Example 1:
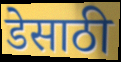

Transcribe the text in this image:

डेसाठी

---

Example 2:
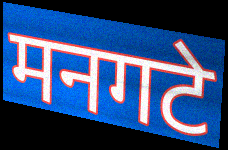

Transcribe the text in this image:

मनगटे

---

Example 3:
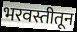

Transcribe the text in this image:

भरवस्तीतून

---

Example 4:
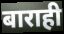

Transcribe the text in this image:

बाराही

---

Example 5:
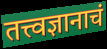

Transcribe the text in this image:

तत्त्वज्ञानाचं